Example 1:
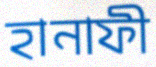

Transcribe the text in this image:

হানাফী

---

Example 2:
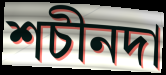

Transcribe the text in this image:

শচীনদা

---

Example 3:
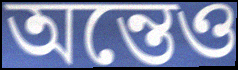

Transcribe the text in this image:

অন্তেও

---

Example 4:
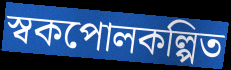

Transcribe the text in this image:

স্বকপোলকল্পিত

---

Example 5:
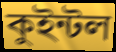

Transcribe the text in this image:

কুইন্টল